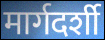
मार्गदर्शी